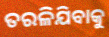
ତରଳିଯିବାକୁ